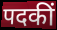
पदकीं